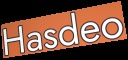
Hasdeo